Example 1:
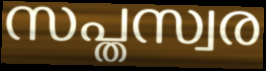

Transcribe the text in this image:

സപ്തസ്വര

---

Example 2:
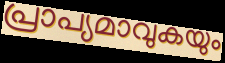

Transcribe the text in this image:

പ്രാപ്യമാവുകയും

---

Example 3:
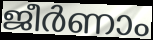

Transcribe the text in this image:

ജീർണാം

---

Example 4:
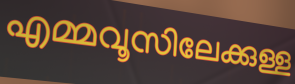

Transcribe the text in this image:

എമ്മവൂസിലേക്കുള്ള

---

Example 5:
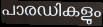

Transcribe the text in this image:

പാരഡികളും